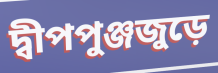
দ্বীপপুঞ্জজুড়ে